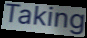
Taking